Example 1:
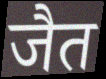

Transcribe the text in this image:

जैत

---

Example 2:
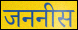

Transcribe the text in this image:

जननीस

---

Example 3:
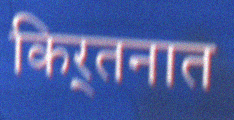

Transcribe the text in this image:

किर्तनात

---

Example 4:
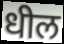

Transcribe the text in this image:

धील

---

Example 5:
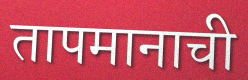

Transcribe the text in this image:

तापमानाची